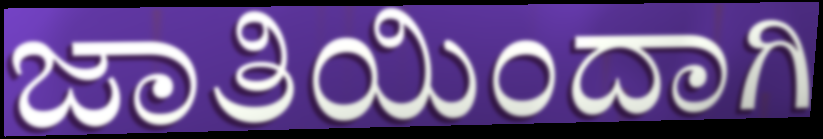
ಜಾತಿಯಿಂದಾಗಿ